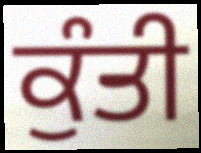
ਕੁੰਤੀ